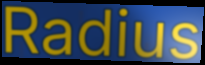
Radius